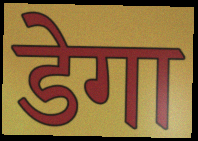
डेगा